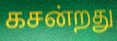
கசன்றது